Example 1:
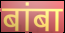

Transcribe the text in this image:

बांबा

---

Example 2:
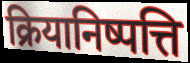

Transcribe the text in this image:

क्रियानिष्पत्ति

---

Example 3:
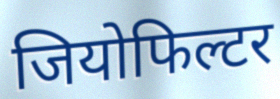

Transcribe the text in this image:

जियोफिल्टर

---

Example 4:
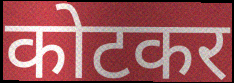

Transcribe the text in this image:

कोटकर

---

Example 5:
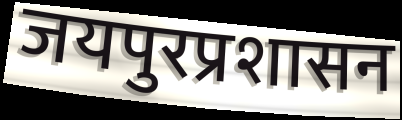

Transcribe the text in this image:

जयपुरप्रशासन